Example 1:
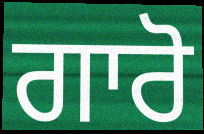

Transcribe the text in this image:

ਗਾਰੋ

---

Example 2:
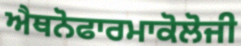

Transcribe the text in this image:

ਐਥਨੋਫਾਰਮਾਕੋਲੋਜੀ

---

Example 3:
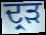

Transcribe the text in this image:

ਦ੍ਰੜ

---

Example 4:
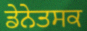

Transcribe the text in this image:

ਡੇਨੇਤਸਕ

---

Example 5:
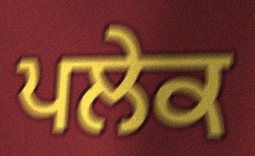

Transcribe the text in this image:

ਪਲੇਕ